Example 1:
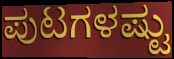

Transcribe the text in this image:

ಪುಟಗಳಷ್ಟು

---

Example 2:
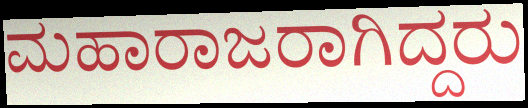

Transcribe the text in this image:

ಮಹಾರಾಜರಾಗಿದ್ದರು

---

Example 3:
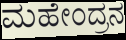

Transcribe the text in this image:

ಮಹೇಂದ್ರನ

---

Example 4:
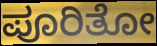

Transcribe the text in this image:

ಪೂರಿತೋ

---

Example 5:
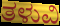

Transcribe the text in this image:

ತಳುವಿ